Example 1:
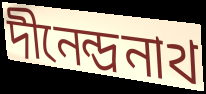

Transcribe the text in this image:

দীনেন্দ্রনাথ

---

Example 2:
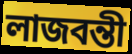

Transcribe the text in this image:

লাজবন্তী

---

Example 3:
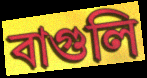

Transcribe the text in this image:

বাগুলি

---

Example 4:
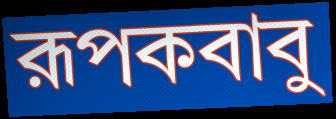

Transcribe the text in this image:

রূপকবাবু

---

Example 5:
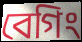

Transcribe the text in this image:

বেগিং